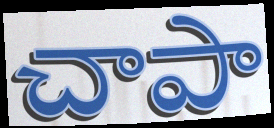
చాపా